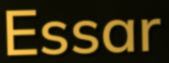
Essar